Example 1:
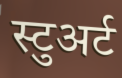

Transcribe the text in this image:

स्टुअर्ट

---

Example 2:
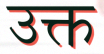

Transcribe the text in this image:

उक्त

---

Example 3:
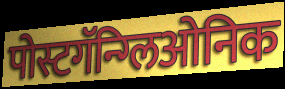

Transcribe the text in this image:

पोस्टगॅन्ग्लिओनिक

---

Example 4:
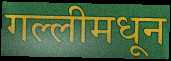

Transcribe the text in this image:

गल्लीमधून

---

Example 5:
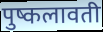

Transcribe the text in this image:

पुष्कलावती